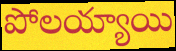
పోలయ్యాయి